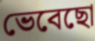
ভেবেছো